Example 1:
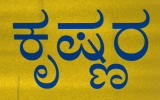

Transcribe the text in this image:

ಕೃಷ್ಣರ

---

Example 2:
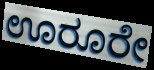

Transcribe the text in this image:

ಊರೂರೇ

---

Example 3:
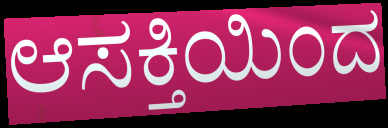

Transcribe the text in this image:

ಆಸಕ್ತಿಯಿಂದ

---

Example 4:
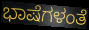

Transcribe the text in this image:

ಭಾಷೆಗಳಂತೆ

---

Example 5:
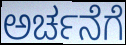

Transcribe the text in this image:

ಅರ್ಚನೆಗೆ